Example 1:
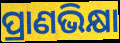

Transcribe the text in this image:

ପ୍ରାଣଭିକ୍ଷା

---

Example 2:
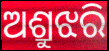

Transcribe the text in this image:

ଅଶ୍ରୁଝରି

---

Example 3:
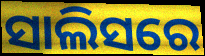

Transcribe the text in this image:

ସାଲିସରେ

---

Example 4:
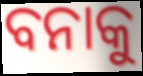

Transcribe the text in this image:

ବନାକୁ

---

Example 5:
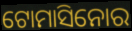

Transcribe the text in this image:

ଟୋମାସିନୋର